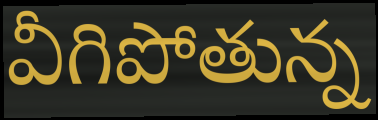
వీగిపోతున్న